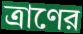
ত্রাণের